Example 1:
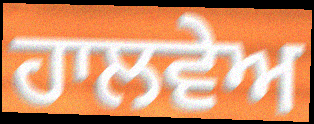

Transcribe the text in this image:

ਹਾਲਵੇਅ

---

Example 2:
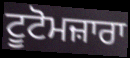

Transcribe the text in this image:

ਟੂਟੋਮਜ਼ਾਰਾ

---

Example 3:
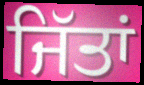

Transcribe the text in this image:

ਜਿੱਤਾਂ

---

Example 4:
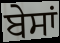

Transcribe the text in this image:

ਬੇਸਾਂ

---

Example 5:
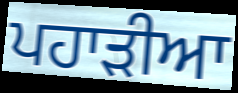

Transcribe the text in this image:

ਪਹਾੜੀਆ